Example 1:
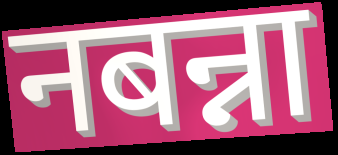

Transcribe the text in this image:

नबन्ना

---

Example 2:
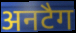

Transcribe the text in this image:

अनटैग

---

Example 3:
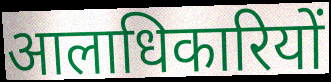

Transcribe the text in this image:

आलाधिकारियों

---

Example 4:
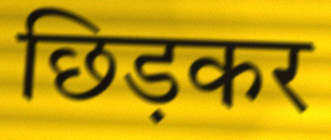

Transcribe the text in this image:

छिड़कर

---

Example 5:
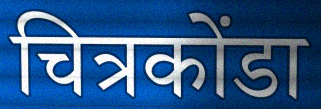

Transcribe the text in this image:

चित्रकोंडा